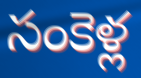
సంకెళ్ల